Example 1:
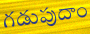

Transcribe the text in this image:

గడుపుదాం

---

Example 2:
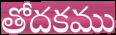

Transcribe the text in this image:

తోదకము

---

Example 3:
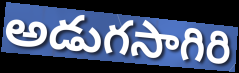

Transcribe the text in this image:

అడుగసాగిరి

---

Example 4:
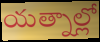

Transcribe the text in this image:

యత్నాల్లో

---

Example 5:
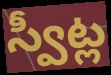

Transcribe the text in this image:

స్వీట్ల